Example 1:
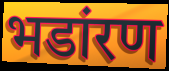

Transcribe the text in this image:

भडांरण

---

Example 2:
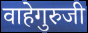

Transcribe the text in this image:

वाहेगुरुजी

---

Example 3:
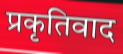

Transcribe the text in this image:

प्रकृतिवाद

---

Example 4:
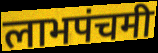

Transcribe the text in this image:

लाभपंचमी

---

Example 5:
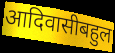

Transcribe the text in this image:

आदिवासीबहुल